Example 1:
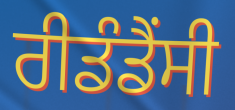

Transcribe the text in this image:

ਰੀਡੰਡੈਂਸੀ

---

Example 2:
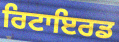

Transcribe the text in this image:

ਰਿਟਾਇਰਡ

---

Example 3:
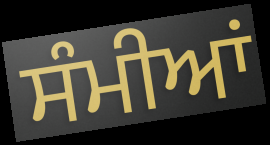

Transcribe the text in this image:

ਸੰਮੀਆਂ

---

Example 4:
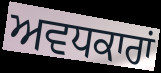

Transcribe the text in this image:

ਅਵਧਕਾਰਾਂ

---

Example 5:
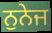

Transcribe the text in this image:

ਨੁਨੇਜ